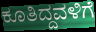
ಕೂತಿದ್ದವಳಿಗೆ